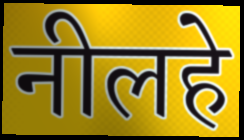
नीलहे